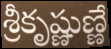
శ్రీకృష్ణుణ్ణే